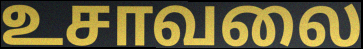
உசாவலை